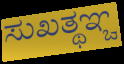
ಸುಖತ್ಥಞ್ಚ